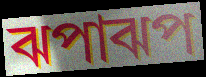
ঝপাঝপ